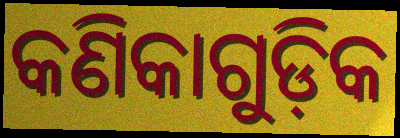
କଣିକାଗୁଡ଼ିକ